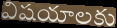
విషయాలకు